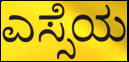
ಎಸ್ಸೆಯ